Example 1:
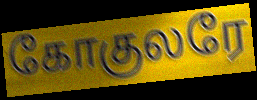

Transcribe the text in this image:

கோகுலரே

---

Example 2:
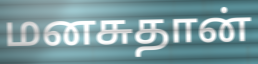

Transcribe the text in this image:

மனசுதான்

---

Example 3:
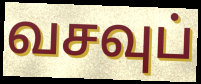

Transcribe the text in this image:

வசவுப்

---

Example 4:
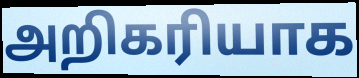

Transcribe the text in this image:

அறிகரியாக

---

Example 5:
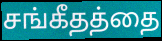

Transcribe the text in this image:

சங்கீதத்தை